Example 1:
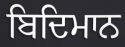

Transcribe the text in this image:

ਬਿਦਿਮਾਨ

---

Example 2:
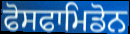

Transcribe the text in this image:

ਫੋਸਫਾਮਿਡੋਨ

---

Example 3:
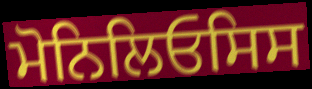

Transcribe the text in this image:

ਮੋਨਿਲਿਓਸਿਸ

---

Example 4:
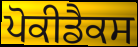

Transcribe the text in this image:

ਪੋਕੀਡੈਕਸ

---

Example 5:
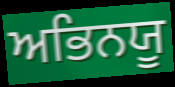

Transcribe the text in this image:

ਅਭਿਨਯੂ